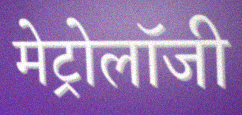
मेट्रोलॉजी